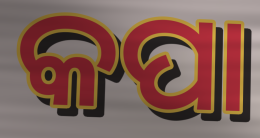
କପା